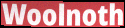
Woolnoth